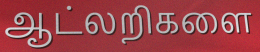
ஆட்லறிகளை